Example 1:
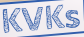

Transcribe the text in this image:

KVKs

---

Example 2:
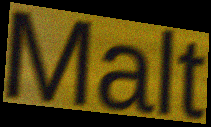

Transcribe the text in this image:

Malt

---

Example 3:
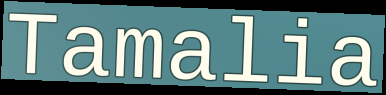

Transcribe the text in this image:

Tamalia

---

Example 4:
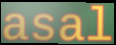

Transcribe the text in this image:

asal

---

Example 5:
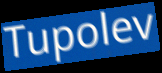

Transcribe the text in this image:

Tupolev